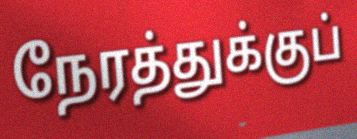
நேரத்துக்குப்